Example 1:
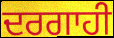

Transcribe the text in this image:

ਦਰਗਾਹੀ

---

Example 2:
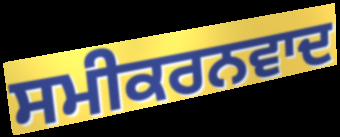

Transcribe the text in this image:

ਸਮੀਕਰਨਵਾਦ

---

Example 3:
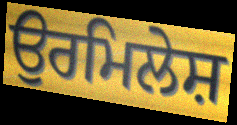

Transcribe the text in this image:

ਉਰਮਿਲੇਸ਼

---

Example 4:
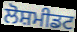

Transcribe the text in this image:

ਲੋਸ਼ਮੀਡਟ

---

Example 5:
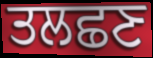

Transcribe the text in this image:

ਤਲਛਣ